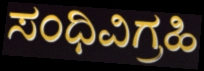
ಸಂಧಿವಿಗ್ರಹಿ